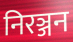
निरञ्जन